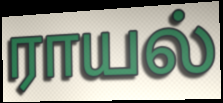
ராயல்